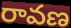
రావణ